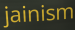
jainism